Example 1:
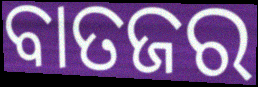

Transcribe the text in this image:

ବାତଜର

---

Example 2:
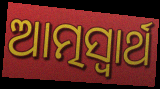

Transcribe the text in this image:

ଆତ୍ମସ୍ଵାର୍ଥ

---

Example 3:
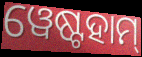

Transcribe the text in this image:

ୱେଷ୍ଟହାମ୍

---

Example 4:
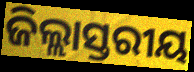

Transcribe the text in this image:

ଜିଲ୍ଲାସ୍ତରୀୟ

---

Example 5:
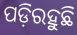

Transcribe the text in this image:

ପଡ଼ିରହୁଛି